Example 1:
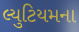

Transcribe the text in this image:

લ્યુટિયમના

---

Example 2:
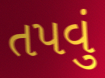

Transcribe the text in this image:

તપવું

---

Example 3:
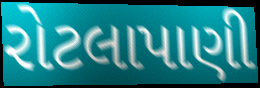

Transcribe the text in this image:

રોટલાપાણી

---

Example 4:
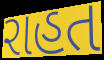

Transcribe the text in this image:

રાહત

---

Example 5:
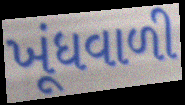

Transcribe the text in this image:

ખૂંધવાળી